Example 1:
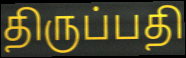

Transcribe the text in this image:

திருப்பதி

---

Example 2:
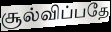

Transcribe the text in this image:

சூல்விப்பதே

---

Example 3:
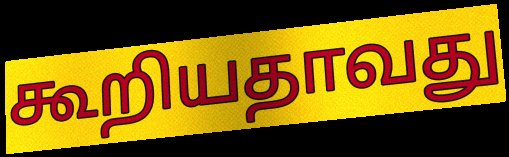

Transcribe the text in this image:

கூறியதாவது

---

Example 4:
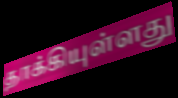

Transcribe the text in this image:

தாக்கியுள்ளது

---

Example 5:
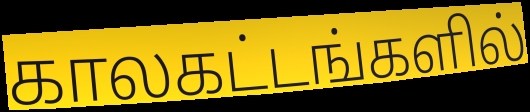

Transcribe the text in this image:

காலகட்டங்களில்